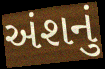
અંશનું